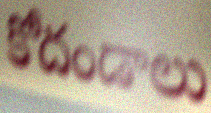
కోదండాలు